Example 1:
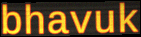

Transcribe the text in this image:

bhavuk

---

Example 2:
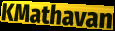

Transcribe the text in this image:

KMathavan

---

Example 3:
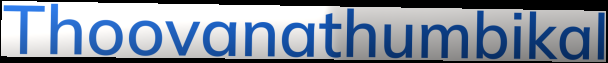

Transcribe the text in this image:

Thoovanathumbikal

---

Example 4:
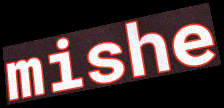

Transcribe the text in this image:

mishe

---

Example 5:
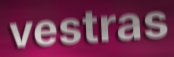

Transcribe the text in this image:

vestras